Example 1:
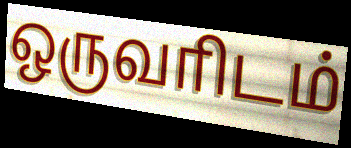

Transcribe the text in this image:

ஒருவரிடம்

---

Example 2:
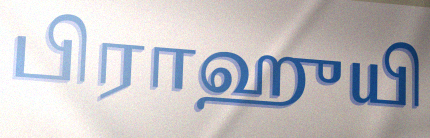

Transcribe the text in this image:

பிராஹுயி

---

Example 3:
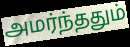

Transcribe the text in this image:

அமர்ந்ததும்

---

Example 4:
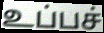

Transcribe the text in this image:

உப்பச்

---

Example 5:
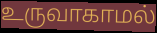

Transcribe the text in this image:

உருவாகாமல்